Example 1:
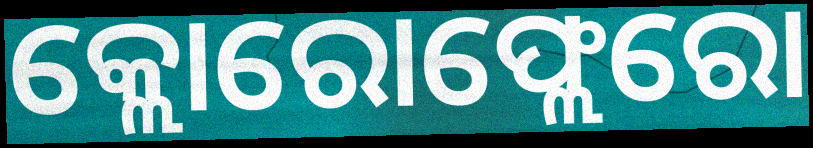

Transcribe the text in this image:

କ୍ଲୋରୋଫ୍ଲେରୋ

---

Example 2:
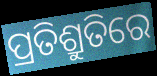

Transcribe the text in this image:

ପ୍ରତିଶ୍ରୁତିରେ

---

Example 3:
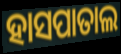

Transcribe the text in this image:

ହାସପାତାଲ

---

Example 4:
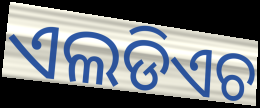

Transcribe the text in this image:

ଏଲଡିଏଚ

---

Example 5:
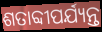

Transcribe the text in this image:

ଶତାବ୍ଦୀପର୍ଯ୍ୟନ୍ତ